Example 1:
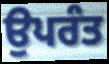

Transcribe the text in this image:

ਉਪਰੰਤ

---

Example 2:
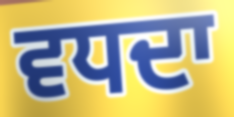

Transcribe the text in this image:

ਵਧਦਾ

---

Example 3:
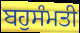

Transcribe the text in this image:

ਬਹੁਸੰਮਤੀ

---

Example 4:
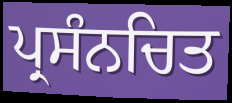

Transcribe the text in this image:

ਪ੍ਰਸੰਨਚਿਤ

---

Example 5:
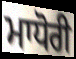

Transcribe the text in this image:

ਮਾਧੋਰੀ